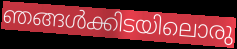
ഞങ്ങൾക്കിടയിലൊരു